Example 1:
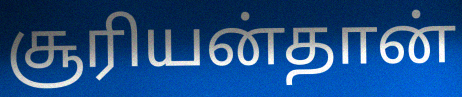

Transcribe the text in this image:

சூரியன்தான்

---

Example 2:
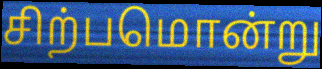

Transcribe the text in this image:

சிற்பமொன்று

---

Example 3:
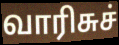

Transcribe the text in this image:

வாரிசுச்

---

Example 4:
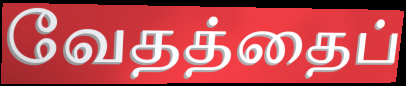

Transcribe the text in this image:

வேதத்தைப்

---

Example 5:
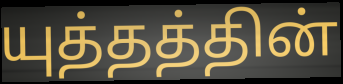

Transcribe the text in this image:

யுத்தத்தின்